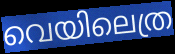
വെയിലെത്ര